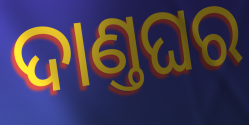
ଦାଣ୍ତଘର